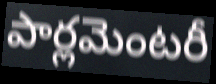
పార్లమెంటరీ